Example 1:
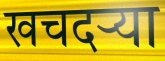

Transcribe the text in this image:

खचदऱ्या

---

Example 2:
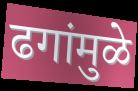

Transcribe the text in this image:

ढगांमुळे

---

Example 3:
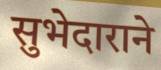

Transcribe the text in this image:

सुभेदाराने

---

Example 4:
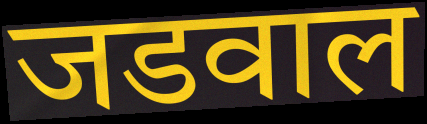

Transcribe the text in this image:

जडवाल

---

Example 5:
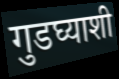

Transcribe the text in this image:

गुडघ्याशी